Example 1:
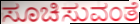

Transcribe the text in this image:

ಸೂಚಿಸುವಂತೆ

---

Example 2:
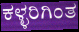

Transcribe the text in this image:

ಕಳ್ಳರಿಗಿಂತ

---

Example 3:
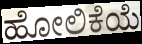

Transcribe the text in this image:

ಹೋಲಿಕೆಯೆ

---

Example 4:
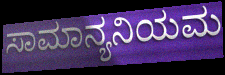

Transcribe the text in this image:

ಸಾಮಾನ್ಯನಿಯಮ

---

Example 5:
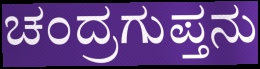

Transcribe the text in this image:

ಚಂದ್ರಗುಪ್ತನು